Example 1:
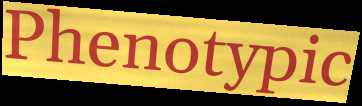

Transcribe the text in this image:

Phenotypic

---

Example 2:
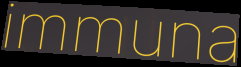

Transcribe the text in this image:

immuna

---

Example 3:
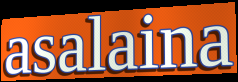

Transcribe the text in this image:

asalaina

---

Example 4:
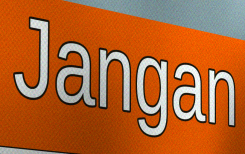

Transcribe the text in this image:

Jangan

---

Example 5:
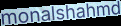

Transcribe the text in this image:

monalshahmd